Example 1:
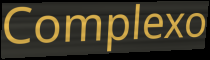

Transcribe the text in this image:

Complexo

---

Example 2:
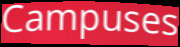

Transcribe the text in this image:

Campuses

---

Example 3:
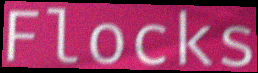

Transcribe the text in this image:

Flocks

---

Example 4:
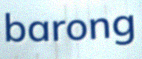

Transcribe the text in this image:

barong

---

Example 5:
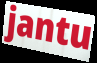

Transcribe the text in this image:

jantu